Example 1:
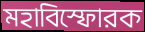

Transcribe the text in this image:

মহাবিস্ফোরক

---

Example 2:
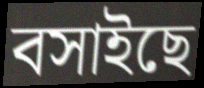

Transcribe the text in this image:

বসাইছে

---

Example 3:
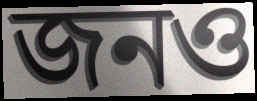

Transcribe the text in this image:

জনও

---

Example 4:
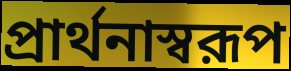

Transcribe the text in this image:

প্রার্থনাস্বরূপ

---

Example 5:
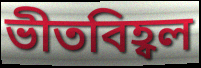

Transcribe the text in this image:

ভীতবিহ্বল